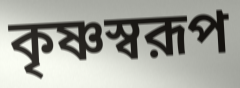
কৃষ্ণস্বরূপ